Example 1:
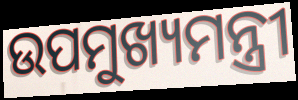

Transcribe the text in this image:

ଉପମୁଖ୍ୟମନ୍ତ୍ରୀ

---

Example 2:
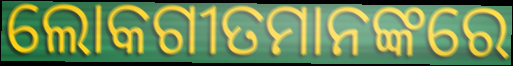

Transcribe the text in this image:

ଲୋକଗୀତମାନଙ୍କରେ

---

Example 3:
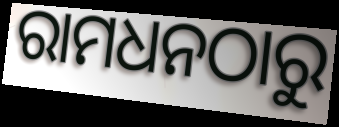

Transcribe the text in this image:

ରାମଧନଠାରୁ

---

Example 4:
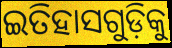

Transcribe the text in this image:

ଇତିହାସଗୁଡ଼ିକୁ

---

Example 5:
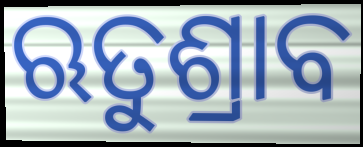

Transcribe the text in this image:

ଋତୁଶ୍ରାବ